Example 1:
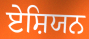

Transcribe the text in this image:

ਏਸ਼ਿਯਨ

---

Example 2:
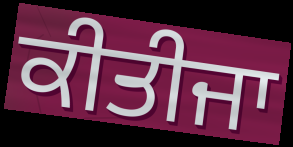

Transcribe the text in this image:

ਕੀਤੀਜਾ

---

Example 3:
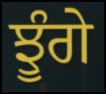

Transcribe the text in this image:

ਝੂੰਗੇ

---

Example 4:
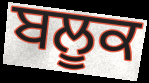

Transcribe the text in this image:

ਬਲੂਕ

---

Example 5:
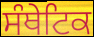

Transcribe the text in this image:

ਸੰਥੇਟਿਕ